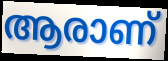
ആരാണ്